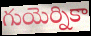
గుయెర్నికా